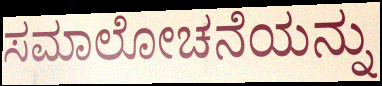
ಸಮಾಲೋಚನೆಯನ್ನು